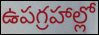
ఉపగ్రహాల్లో